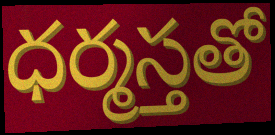
ధర్మస్తతో